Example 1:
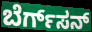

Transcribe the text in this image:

ಬೆರ್ಗ್‌ಸನ್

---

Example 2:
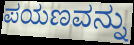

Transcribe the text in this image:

ಪಯಣವನ್ನು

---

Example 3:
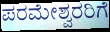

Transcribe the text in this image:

ಪರಮೇಶ್ವರರಿಗೆ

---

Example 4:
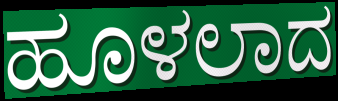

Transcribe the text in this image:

ಹೂಳಲಾದ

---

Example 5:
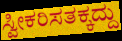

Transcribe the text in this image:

ಸ್ವೀಕರಿಸತಕ್ಕದ್ದು